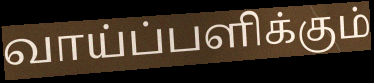
வாய்ப்பளிக்கும்